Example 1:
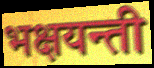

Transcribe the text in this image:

भक्षयन्ती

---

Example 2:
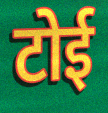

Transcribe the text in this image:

टोई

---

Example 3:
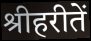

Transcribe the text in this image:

श्रीहरीतें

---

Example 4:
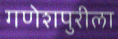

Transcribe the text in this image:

गणेशपुरीला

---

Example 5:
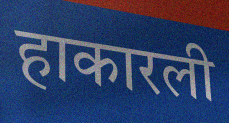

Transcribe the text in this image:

हाकारली